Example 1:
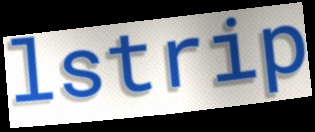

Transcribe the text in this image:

lstrip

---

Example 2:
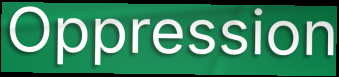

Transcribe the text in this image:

Oppression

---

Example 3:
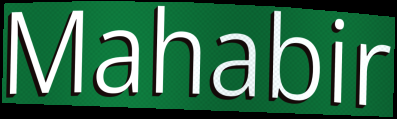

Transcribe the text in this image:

Mahabir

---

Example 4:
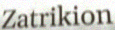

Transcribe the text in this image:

Zatrikion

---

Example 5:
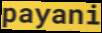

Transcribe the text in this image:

payani